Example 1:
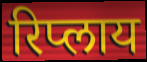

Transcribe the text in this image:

रिप्लाय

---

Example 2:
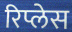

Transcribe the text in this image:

रिप्लेस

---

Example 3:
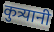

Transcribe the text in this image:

कुत्र्यानी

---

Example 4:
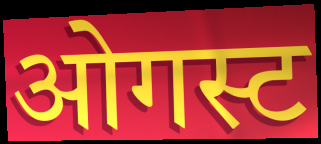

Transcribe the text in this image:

ओगस्ट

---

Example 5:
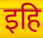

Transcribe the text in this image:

इहि